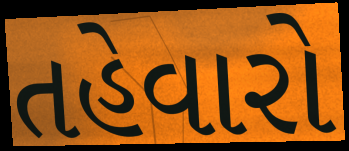
તહેવારો